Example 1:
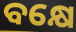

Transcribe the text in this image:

ବକ୍ଷେ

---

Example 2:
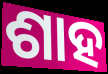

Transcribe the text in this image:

ଶାହ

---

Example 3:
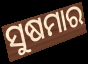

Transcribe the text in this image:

ସୁଷମାର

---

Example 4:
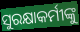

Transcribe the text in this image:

ସୁରକ୍ଷାକର୍ମୀଙ୍କୁ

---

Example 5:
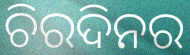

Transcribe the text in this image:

ଚିରଦିନର